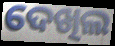
ଦେଖିଲ